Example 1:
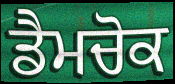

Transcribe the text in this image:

ਡੈਮਚੋਕ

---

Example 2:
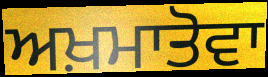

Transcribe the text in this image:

ਅਖ਼ਮਾਤੋਵਾ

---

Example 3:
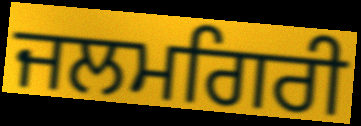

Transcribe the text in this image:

ਜਲਮਗਿਰੀ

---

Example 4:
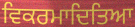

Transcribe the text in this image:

ਵਿਕਰਮਾਦਿਤਿਆ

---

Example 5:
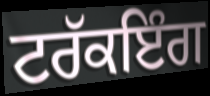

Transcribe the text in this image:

ਟਰੱਕਇੰਗ